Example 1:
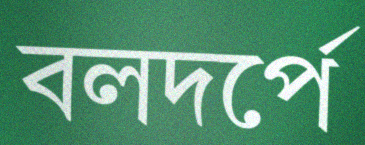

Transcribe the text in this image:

বলদর্পে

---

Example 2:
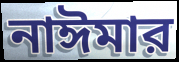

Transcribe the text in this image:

নাঈমার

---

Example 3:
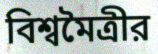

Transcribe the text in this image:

বিশ্বমৈত্রীর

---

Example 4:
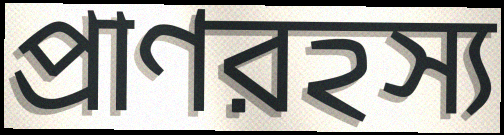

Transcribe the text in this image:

প্রাণরহস্য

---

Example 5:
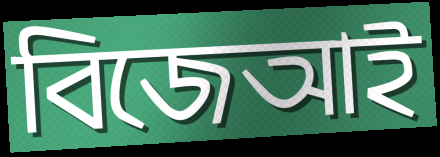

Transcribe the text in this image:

বিজেআই